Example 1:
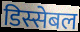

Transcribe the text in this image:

डिस्सेबल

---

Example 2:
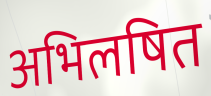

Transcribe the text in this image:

अभिलषित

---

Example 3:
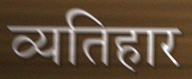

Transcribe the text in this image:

व्यतिहार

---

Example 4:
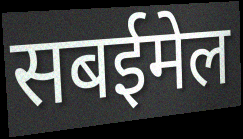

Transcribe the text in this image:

सबईमेल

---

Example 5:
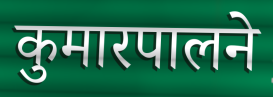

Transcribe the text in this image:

कुमारपालने